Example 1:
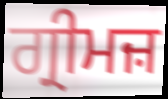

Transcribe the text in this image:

ਗ੍ਰੀਮਜ਼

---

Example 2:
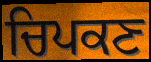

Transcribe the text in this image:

ਚਿਪਕਣ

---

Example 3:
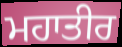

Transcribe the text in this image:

ਮਹਾਤੀਰ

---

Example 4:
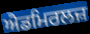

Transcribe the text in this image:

ਐਡਮਿਰਲਜ਼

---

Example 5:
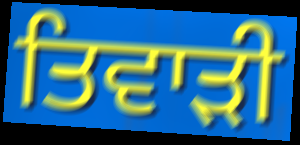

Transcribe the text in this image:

ਤਿਵਾੜੀ